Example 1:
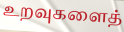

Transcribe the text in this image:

உறவுகளைத்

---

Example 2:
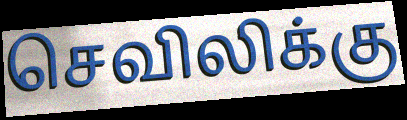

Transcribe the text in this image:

செவிலிக்கு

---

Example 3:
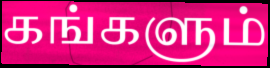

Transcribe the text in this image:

கங்களும்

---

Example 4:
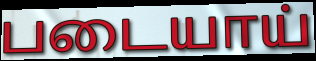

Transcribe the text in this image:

படையாய்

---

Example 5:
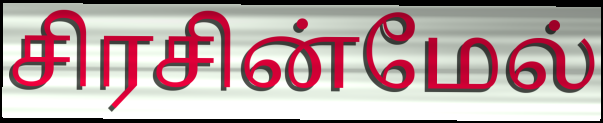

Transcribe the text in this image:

சிரசின்மேல்